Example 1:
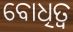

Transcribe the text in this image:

ବୋଧିତ୍ୱ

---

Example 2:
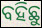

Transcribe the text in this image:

ବହିଛୁ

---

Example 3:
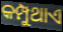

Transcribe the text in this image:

କମ୍ପୁଥାଏ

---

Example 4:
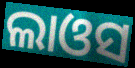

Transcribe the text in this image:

ଲାଓସ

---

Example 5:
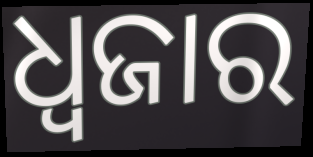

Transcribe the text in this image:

ଧ୍ୱଜାର